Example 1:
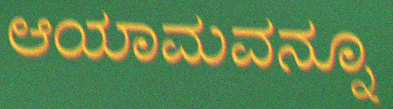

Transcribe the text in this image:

ಆಯಾಮವನ್ನೂ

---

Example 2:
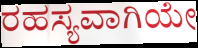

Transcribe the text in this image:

ರಹಸ್ಯವಾಗಿಯೇ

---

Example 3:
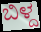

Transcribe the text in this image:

ಬಿಳ್ದ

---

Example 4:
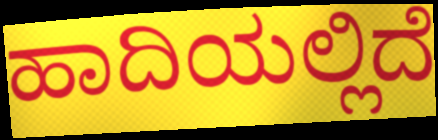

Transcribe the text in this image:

ಹಾದಿಯಲ್ಲಿದೆ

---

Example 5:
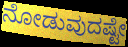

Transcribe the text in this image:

ನೋಡುವುದಷ್ಟೇ